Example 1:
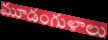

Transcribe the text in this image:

మూడంగుళాలు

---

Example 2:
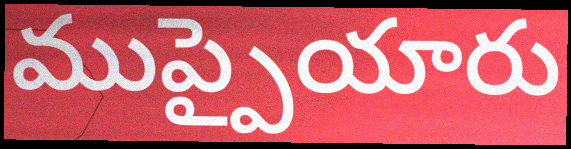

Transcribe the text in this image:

ముప్పైయారు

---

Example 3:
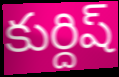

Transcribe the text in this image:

కుర్దిష్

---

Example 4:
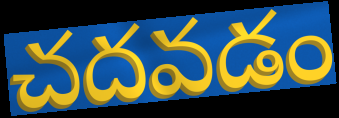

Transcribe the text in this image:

చదవడం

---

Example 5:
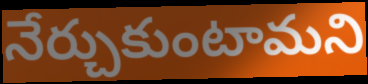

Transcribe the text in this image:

నేర్చుకుంటామని